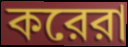
করেরা